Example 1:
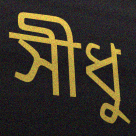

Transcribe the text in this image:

সীধু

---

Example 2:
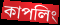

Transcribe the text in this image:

কাপলিং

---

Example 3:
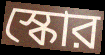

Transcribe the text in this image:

স্কোর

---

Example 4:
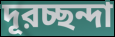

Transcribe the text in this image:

দূরচ্ছন্দা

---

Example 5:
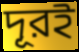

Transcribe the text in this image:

দূরই